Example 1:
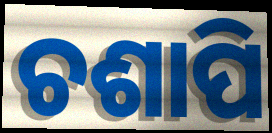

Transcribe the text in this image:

ଚଶାପି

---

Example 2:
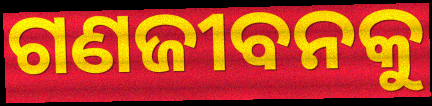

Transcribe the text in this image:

ଗଣଜୀବନକୁ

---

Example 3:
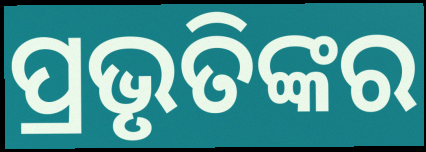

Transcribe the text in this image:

ପ୍ରଭୃତିଙ୍କର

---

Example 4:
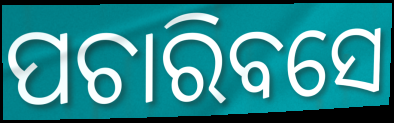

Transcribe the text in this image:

ପଚାରିବସେ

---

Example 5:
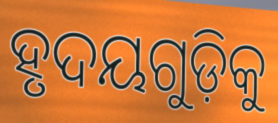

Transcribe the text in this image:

ହୃଦୟଗୁଡ଼ିକୁ